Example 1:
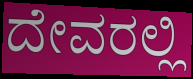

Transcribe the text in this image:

ದೇವರಲ್ಲಿ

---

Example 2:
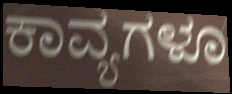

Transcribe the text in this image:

ಕಾವ್ಯಗಳೂ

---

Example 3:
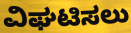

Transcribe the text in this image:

ವಿಘಟಿಸಲು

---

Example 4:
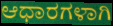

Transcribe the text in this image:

ಆಧಾರಗಳಾಗಿ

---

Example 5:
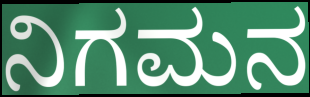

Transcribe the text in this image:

ನಿಗಮನ